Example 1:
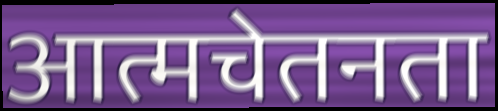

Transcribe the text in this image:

आत्मचेतनता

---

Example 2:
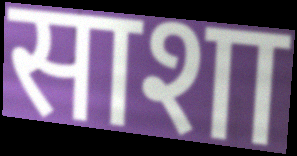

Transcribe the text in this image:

साशा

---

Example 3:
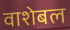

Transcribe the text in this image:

वाशेबल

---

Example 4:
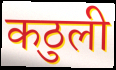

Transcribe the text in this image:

कठुली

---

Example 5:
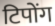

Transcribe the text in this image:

टिपोंग